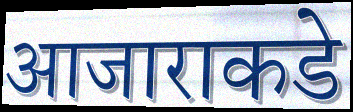
आजाराकडे